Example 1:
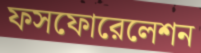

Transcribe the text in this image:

ফসফোরেলেশন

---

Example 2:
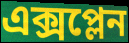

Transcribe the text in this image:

এক্সপ্লেন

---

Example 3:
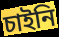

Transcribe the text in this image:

চাইনি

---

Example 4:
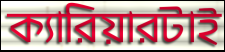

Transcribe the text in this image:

ক্যারিয়ারটাই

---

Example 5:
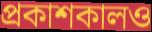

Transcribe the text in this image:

প্রকাশকালও